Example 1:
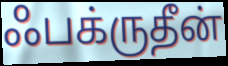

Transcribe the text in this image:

ஃபக்ருதீன்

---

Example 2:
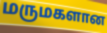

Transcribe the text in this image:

மருமகளான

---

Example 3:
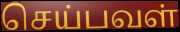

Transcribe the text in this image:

செய்பவள்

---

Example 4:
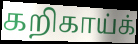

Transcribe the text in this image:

கறிகாய்க்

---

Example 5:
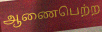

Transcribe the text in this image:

ஆணைபெற்ற